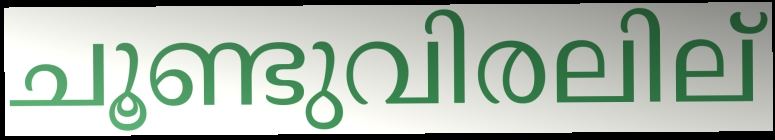
ചൂണ്ടുവിരലില്